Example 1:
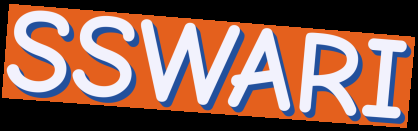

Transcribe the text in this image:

SSWARI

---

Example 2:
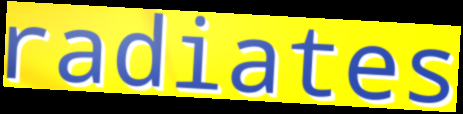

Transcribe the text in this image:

radiates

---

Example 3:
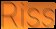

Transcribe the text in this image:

Riss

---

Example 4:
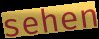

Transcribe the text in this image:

sehen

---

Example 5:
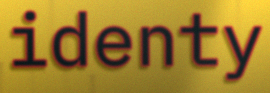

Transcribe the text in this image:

identy